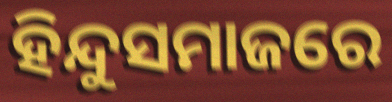
ହିନ୍ଦୁସମାଜରେ